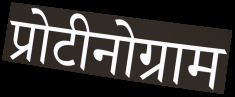
प्रोटीनोग्राम